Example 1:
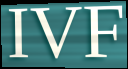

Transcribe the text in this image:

IVF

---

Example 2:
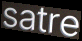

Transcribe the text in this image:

satre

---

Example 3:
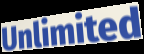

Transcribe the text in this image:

Unlimited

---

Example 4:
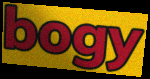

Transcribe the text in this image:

bogy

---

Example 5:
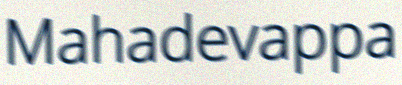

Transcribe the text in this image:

Mahadevappa